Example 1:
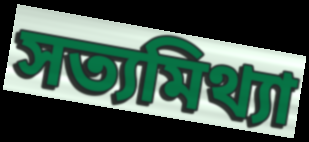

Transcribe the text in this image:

সত্যমিথ্যা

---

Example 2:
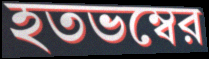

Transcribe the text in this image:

হতভম্বের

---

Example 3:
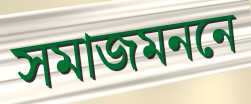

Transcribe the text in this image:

সমাজমননে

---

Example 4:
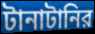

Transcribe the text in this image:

টানাটানির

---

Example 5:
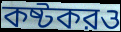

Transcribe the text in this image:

কষ্টকরও